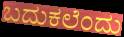
ಬದುಕಲೆಂದು